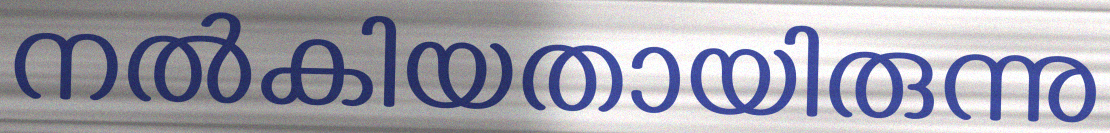
നൽകിയതായിരുന്നു